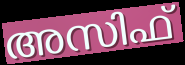
അസിഫ്